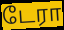
டேரா